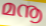
മനൂ